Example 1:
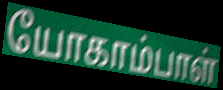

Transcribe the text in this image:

யோகாம்பாள்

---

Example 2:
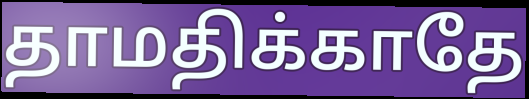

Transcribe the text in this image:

தாமதிக்காதே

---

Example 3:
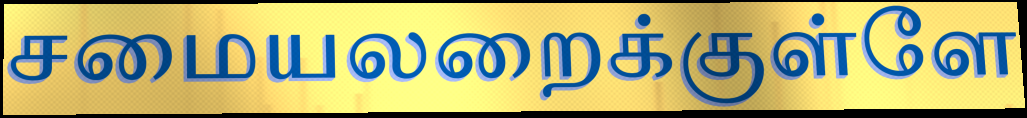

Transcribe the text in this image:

சமையலறைக்குள்ளே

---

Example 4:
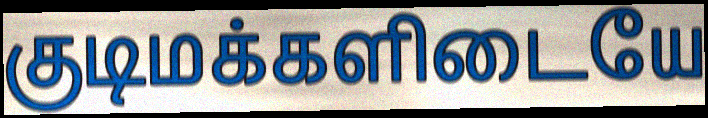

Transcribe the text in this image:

குடிமக்களிடையே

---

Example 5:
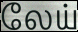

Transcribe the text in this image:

லேய்